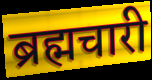
ब्रह्मचारी